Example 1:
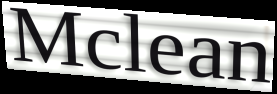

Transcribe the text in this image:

Mclean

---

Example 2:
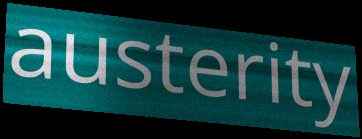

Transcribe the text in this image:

austerity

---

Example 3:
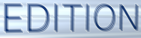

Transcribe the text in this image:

EDITION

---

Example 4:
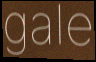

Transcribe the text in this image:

gale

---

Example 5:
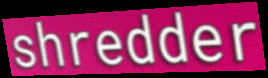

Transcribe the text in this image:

shredder